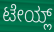
ಟೇಯ್ಲ್